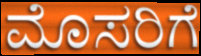
ಮೊಸರಿಗೆ